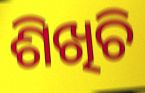
ଶିଖିଚି